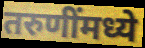
तरुणींमध्ये